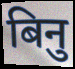
बिनु